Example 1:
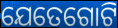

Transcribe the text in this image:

ଯେତେଗୋଟି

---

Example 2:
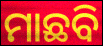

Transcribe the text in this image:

ମାଛବି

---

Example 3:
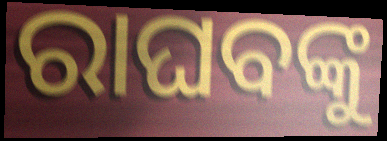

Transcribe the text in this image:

ରାଘବଙ୍କୁ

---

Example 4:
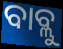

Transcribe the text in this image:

ବାବ୍ଲୁ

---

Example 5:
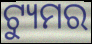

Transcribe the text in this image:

ଟ୍ୟୁମର